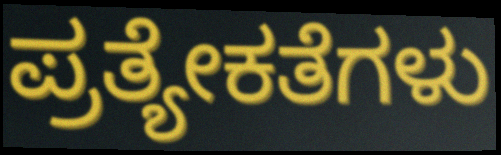
ಪ್ರತ್ಯೇಕತೆಗಳು